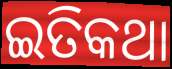
ଇତିକଥା